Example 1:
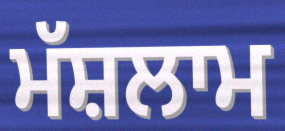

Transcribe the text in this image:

ਮੱਸ਼ਲਾਮ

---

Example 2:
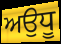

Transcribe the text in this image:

ਅਉਧੂ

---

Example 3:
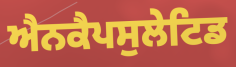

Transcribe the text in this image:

ਐਨਕੈਪਸੁਲੇਟਿਡ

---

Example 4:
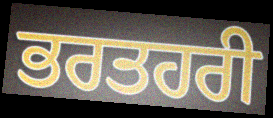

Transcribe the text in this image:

ਭਰਤਹਰੀ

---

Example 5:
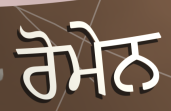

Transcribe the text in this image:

ਰੋਮੇਨ